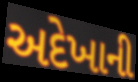
અદેખાની